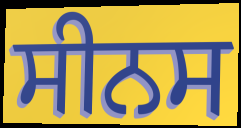
ਸੀਨਸ